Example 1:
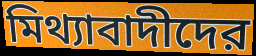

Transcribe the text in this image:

মিথ্যাবাদীদের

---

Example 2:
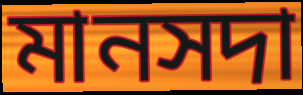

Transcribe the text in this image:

মানসদা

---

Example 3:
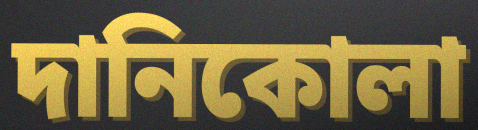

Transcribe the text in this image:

দানিকোলা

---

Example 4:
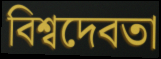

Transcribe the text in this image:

বিশ্বদেবতা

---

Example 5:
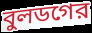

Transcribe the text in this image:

বুলডগের